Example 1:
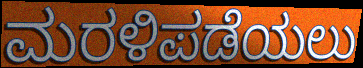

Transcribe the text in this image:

ಮರಳಿಪಡೆಯಲು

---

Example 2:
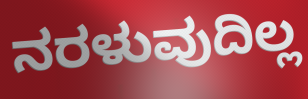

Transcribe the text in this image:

ನರಳುವುದಿಲ್ಲ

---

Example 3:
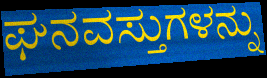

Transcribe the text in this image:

ಘನವಸ್ತುಗಳನ್ನು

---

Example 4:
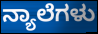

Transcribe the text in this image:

ನ್ಯಾಲೆಗಳು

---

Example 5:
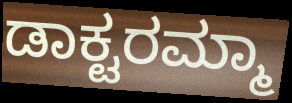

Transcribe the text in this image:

ಡಾಕ್ಟರಮ್ಮಾ